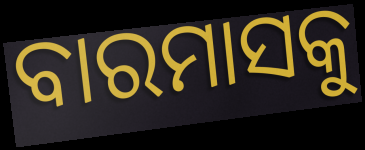
ବାରମାସକୁ